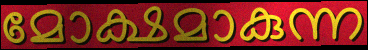
മോക്ഷമാകുന്ന